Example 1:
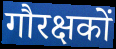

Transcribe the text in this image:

गौरक्षकों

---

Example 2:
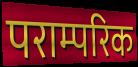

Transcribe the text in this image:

पराम्परिक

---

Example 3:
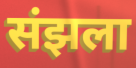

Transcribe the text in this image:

संझला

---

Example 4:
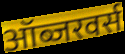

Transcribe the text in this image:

ऑब्जरवर्स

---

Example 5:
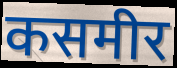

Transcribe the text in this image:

कसमीर